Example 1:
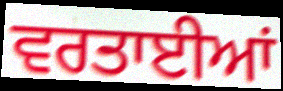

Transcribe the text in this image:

ਵਰਤਾਈਆਂ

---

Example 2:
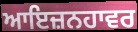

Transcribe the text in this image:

ਆਇਜ਼ਨਹਾਵਰ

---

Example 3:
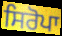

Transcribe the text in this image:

ਸਿਰੋਪਾ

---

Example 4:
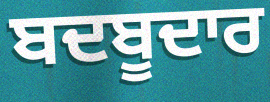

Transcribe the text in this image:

ਬਦਬੂਦਾਰ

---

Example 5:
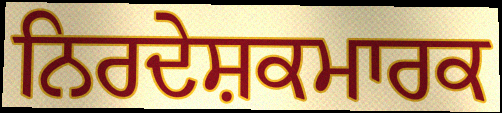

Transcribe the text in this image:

ਨਿਰਦੇਸ਼ਕਮਾਰਕ